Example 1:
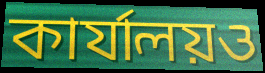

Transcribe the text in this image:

কার্যালয়ও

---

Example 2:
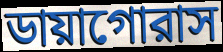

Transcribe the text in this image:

ডায়াগোরাস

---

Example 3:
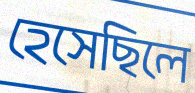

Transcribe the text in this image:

হেসেছিলে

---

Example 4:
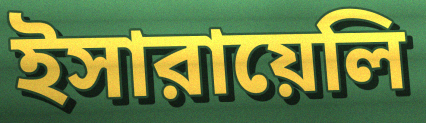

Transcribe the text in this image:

ইসারায়েলি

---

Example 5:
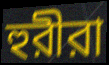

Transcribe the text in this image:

হুরীরা